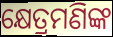
କ୍ଷେତ୍ରମଣିଙ୍କ